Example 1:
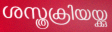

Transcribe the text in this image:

ശസ്ത്രക്രിയയ്ക്കു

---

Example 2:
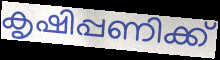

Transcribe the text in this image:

കൃഷിപ്പണിക്ക്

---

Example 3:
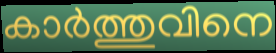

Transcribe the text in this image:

കാർത്തുവിനെ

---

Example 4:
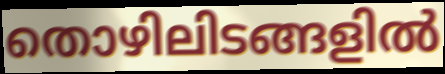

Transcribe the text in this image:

തൊഴിലിടങ്ങളിൽ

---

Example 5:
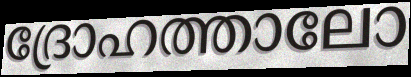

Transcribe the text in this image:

ദ്രോഹത്താലോ